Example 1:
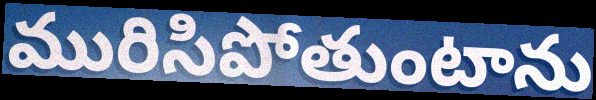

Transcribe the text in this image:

మురిసిపోతుంటాను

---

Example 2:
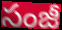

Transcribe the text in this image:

సంజీ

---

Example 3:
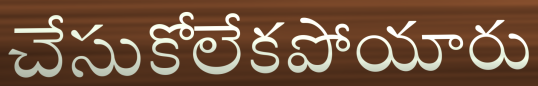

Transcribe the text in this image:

చేసుకోలేకపోయారు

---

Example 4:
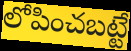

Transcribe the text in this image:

లోపించబట్టే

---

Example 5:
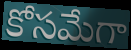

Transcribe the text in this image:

కోసమేగా